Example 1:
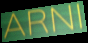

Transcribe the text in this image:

ARNI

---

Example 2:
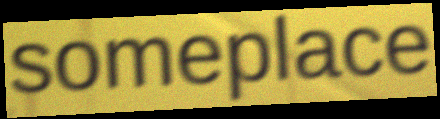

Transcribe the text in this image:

someplace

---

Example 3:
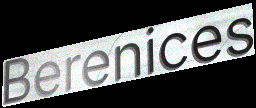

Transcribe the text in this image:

Berenices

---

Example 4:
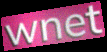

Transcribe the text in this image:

wnet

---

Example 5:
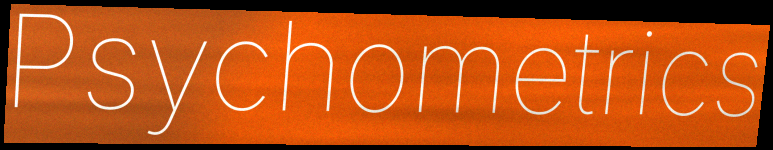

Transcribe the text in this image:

Psychometrics